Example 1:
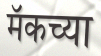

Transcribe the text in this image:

मॅकच्या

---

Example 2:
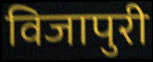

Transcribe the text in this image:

विजापुरी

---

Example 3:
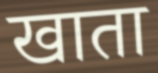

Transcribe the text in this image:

खाता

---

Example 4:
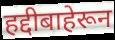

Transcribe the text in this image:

हद्दीबाहेरून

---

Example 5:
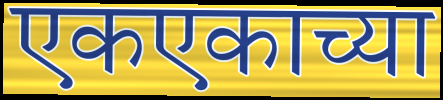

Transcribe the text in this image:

एकएकाच्या